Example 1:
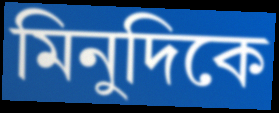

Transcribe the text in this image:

মিনুদিকে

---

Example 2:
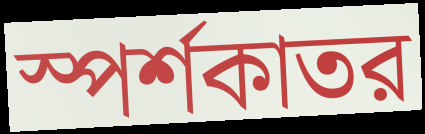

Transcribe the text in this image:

স্পর্শকাতর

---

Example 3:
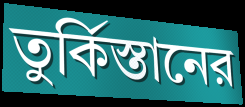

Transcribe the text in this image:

তুর্কিস্তানের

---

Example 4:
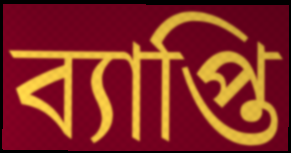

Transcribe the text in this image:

ব্যাপ্তি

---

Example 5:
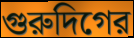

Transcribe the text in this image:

গুরুদিগের